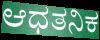
ಆಧತನಿಕ